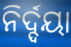
ନିର୍ଦ୍ଦୟା